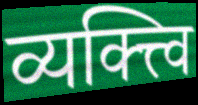
व्यक्त्त्वि